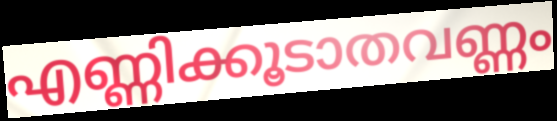
എണ്ണിക്കൂടാതവണ്ണം